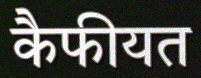
कैफीयत